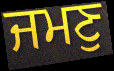
ਜਮਣੁ